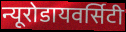
न्यूरोडायवर्सिटी